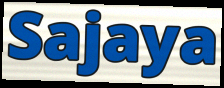
Sajaya